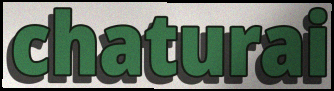
chaturai